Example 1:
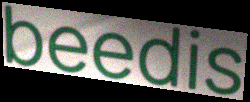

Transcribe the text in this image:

beedis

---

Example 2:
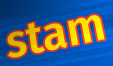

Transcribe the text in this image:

stam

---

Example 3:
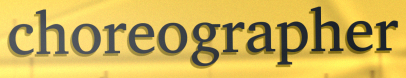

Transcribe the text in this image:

choreographer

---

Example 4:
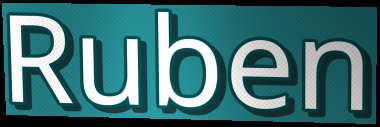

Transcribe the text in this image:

Ruben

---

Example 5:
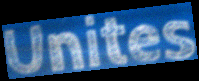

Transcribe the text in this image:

Unites